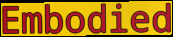
Embodied